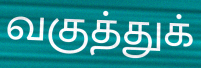
வகுத்துக்